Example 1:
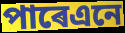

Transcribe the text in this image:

পাৰেএনে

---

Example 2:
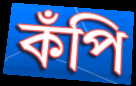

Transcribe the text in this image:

কঁপি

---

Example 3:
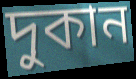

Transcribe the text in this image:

দুকান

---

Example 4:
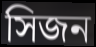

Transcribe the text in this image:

সিজন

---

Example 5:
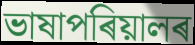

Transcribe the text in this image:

ভাষাপৰিয়ালৰ